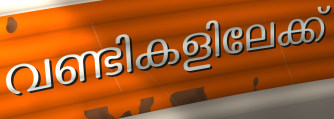
വണ്ടികളിലേക്ക്